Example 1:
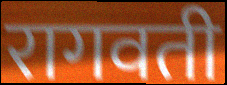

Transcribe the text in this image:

रागवती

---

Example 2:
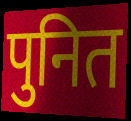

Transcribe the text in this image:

पुनित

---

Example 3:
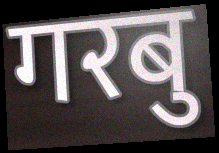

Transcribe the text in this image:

गरबु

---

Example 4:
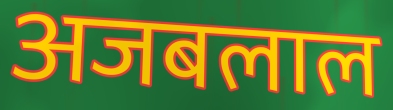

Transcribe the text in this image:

अजबलाल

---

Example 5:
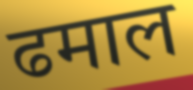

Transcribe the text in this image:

ढमाल